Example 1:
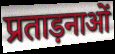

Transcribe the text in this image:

प्रताड़नाओं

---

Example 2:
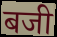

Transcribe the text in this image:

बजी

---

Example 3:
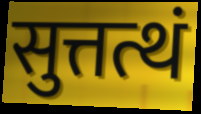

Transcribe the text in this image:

सुत्तत्थं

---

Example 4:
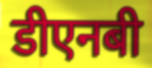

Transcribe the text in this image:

डीएनबी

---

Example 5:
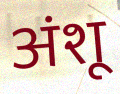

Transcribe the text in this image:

अंशू